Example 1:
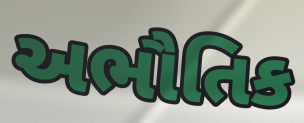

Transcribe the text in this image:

અભૌતિક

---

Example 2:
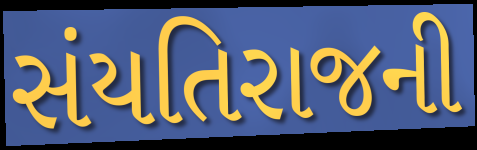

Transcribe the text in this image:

સંયતિરાજની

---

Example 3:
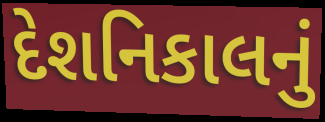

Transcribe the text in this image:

દેશનિકાલનું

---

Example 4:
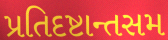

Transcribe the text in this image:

પ્રતિદષ્ટાન્તસમ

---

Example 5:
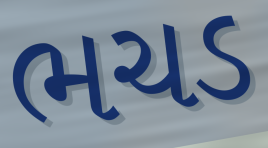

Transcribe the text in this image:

ભચડ